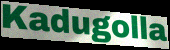
Kadugolla